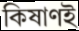
কিষাণই